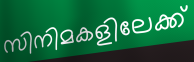
സിനിമകളിലേക്ക്